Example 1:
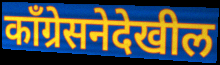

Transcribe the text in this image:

काँग्रेसनेदेखील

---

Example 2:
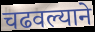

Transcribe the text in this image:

चढवल्याने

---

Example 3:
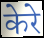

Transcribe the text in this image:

केरे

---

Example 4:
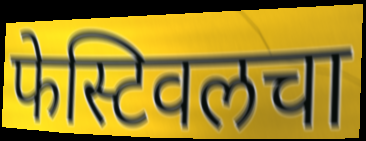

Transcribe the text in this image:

फेस्टिवलचा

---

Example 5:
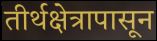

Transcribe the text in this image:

तीर्थक्षेत्रापासून